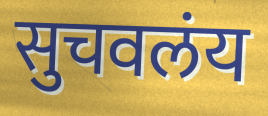
सुचवलंय